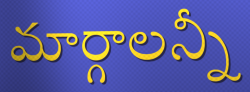
మార్గాలన్నీ